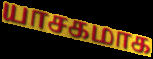
யாசகமாக